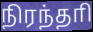
நிரந்தரி